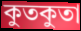
কুতকুতা